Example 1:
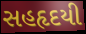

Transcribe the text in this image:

સહહૃદયી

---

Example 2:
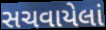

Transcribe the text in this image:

સચવાયેલાં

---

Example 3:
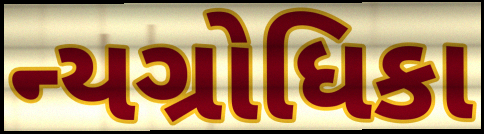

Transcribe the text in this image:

ન્યગ્રોધિકા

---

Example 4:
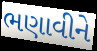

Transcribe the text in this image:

ભણાવીને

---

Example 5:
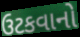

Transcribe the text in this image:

ઉટકવાનો